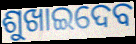
ଶୁଖାଇଦେବ